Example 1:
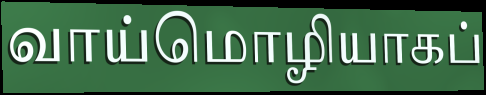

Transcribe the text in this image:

வாய்மொழியாகப்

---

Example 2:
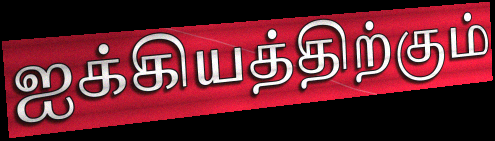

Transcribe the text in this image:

ஐக்கியத்திற்கும்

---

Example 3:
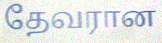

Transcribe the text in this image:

தேவரான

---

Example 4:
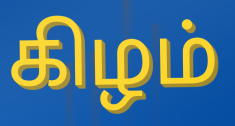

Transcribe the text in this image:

கிழம்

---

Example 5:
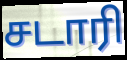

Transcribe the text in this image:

சடாரி